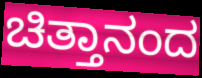
ಚಿತ್ತಾನಂದ